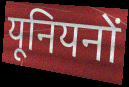
यूनियनों